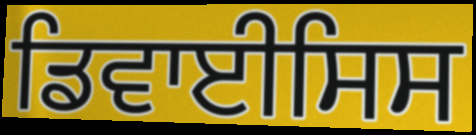
ਡਿਵਾਈਸਿਸ